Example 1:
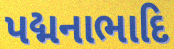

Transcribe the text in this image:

પદ્મનાભાદિ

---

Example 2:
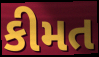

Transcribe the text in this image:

કીમત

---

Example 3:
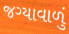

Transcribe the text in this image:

જગ્યાવાળું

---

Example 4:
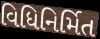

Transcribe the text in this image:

વિધિનિર્મિત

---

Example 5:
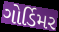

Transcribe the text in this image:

ગોર્ડિમર